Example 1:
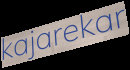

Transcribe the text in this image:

kajarekar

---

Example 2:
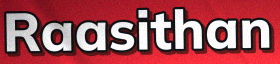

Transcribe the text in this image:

Raasithan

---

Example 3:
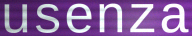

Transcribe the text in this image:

usenza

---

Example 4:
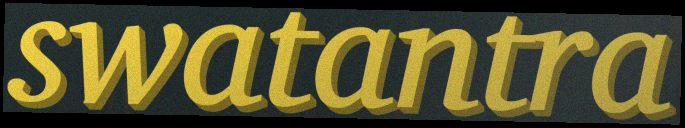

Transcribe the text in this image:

swatantra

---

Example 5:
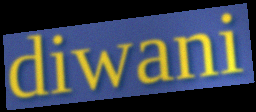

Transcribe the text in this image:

diwani